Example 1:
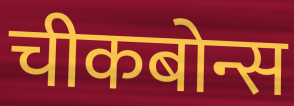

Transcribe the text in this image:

चीकबोन्स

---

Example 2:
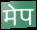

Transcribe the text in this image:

मेप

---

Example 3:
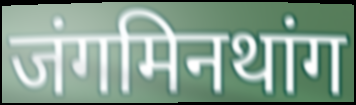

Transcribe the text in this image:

जंगमिनथांग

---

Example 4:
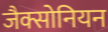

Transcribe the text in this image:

जैक्सोनियन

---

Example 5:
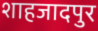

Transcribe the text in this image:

शाहजादपुर